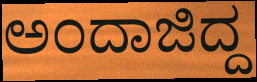
ಅಂದಾಜಿದ್ದ